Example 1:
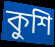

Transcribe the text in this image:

কুশি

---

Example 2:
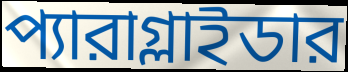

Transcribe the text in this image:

প্যারাগ্লাইডার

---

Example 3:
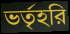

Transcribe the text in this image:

ভর্তৃহরি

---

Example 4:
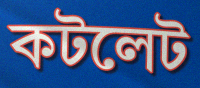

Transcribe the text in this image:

কটলেট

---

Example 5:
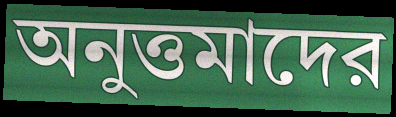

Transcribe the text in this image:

অনুত্তমাদের